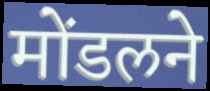
मोंडलने